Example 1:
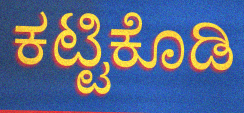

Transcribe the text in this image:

ಕಟ್ಟಿಕೊಡಿ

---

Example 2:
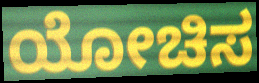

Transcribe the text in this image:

ಯೋಚಿಸ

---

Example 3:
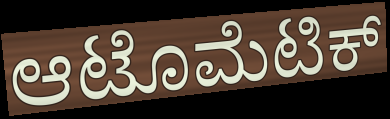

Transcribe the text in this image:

ಆಟೊಮೆಟಿಕ್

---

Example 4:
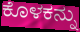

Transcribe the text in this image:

ಕೊಳಕನ್ನು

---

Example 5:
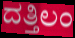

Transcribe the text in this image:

ದತ್ತಿಲಂ